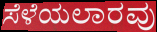
ಸೆಳೆಯಲಾರವು